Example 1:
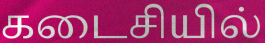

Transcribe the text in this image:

கடைசியில்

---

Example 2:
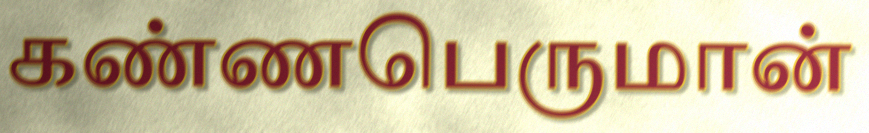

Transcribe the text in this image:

கண்ணபெருமான்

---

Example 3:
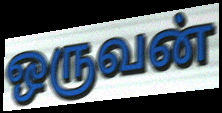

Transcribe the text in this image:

ஒருவன்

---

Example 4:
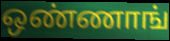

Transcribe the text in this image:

ஒண்ணாங்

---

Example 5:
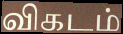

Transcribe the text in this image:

விகடம்